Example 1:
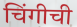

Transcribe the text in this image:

चिंगीची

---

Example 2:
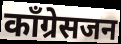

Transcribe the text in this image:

काँग्रेसजन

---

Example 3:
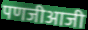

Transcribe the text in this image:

पणजीआजी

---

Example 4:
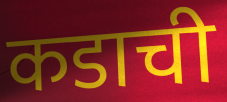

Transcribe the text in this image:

कडाची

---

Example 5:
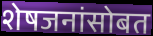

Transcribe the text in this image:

शेषजनांसोबत